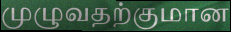
முழுவதற்குமான